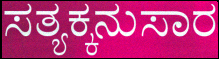
ಸತ್ಯಕ್ಕನುಸಾರ